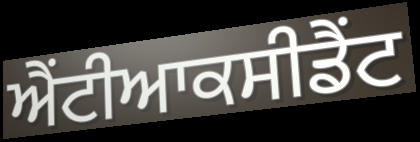
ਐਂਟੀਆਕਸੀਡੈਂਟ